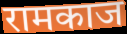
रामकाज